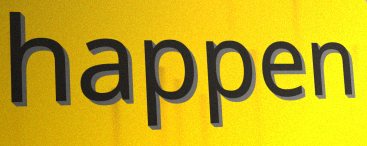
happen